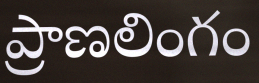
ప్రాణలింగం